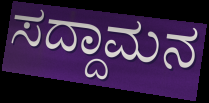
ಸದ್ದಾಮನ